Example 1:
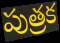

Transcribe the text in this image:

పుత్రక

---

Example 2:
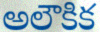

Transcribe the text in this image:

అలౌకిక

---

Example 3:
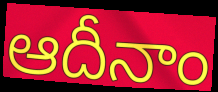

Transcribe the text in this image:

ఆదీనాం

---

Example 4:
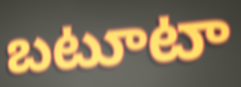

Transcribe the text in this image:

బటూటా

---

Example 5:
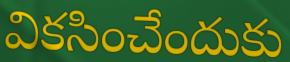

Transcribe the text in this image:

వికసించేందుకు